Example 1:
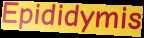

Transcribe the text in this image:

Epididymis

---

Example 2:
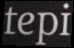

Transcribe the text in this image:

tepi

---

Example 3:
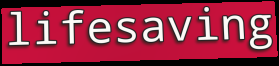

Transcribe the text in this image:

lifesaving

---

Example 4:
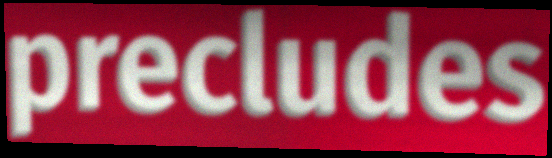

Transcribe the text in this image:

precludes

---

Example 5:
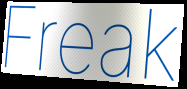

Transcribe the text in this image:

Freak